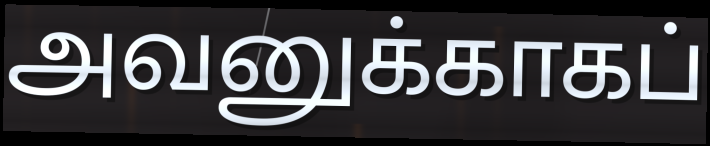
அவனுக்காகப்